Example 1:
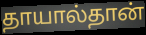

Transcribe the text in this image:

தாயால்தான்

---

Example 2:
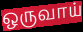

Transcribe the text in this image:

ஒருவாய்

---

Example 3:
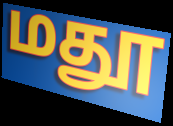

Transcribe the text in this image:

மதூ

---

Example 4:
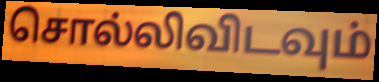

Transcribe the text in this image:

சொல்லிவிடவும்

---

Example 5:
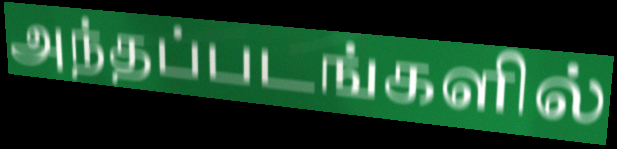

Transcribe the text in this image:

அந்தப்படங்களில்